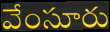
వేంసూరు